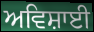
ਅਵਿਸ਼ਾਈ